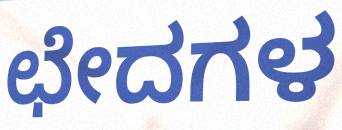
ಛೇದಗಳ